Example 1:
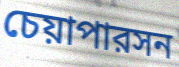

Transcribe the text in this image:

চেয়াপারসন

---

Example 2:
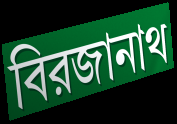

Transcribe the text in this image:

বিরজানাথ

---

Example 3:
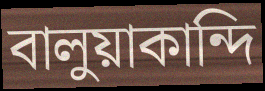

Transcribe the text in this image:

বালুয়াকান্দি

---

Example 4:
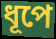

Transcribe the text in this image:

ধূপে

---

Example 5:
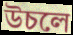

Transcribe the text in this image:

উচলে